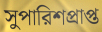
সুপারিশপ্রাপ্ত